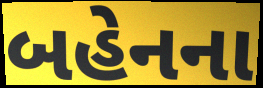
બહેનના